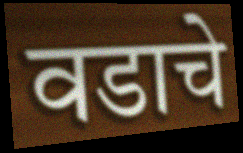
वडाचे